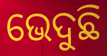
ଭେଦୁଛି